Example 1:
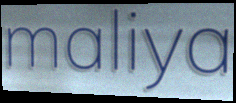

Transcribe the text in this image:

maliya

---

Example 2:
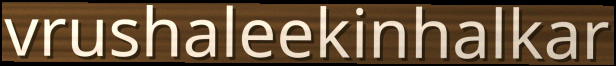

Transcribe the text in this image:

vrushaleekinhalkar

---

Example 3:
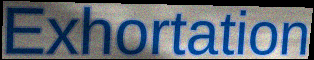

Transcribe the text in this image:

Exhortation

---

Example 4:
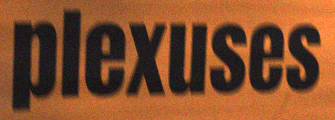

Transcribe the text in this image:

plexuses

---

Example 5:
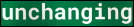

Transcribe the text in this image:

unchanging